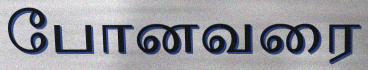
போனவரை